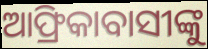
ଆଫ୍ରିକାବାସୀଙ୍କୁ